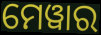
ମେୱାର